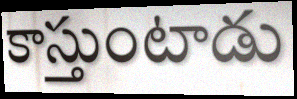
కాస్తుంటాడు